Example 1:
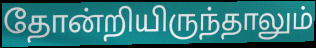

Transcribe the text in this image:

தோன்றியிருந்தாலும்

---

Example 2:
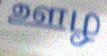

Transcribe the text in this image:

ஊழ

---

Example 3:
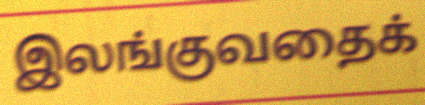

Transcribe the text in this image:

இலங்குவதைக்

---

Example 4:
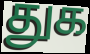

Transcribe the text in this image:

துக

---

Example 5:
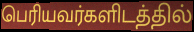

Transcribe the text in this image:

பெரியவர்களிடத்தில்